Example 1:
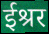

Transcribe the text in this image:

ईश्रर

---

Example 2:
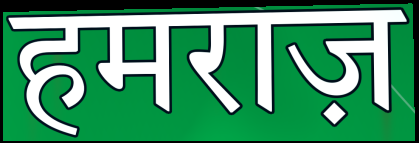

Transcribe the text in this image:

हमराज़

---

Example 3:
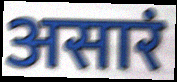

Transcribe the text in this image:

असारं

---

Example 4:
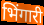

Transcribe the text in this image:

भिंगारी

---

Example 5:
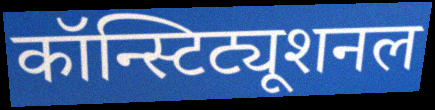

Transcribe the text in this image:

कॉन्स्टिट्यूशनल